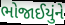
ભોજાઈયુંને